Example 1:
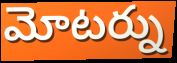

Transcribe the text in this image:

మోటర్ను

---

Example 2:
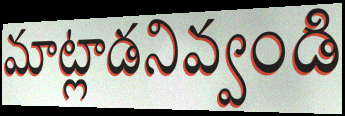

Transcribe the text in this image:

మాట్లాడనివ్వండి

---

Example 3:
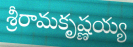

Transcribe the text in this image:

శ్రీరామకృష్ణయ్య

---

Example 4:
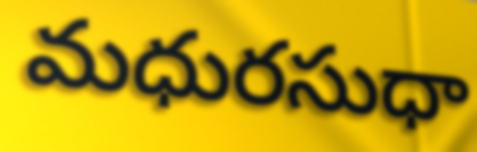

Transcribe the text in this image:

మధురసుధా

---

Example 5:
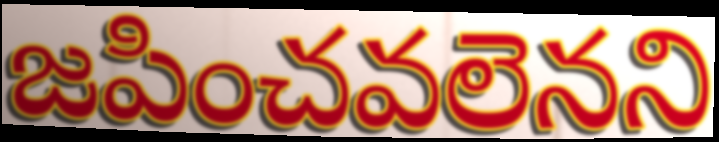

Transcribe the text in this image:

జపించవలెనని